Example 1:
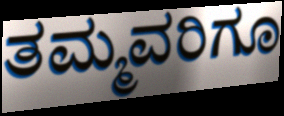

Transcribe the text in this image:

ತಮ್ಮವರಿಗೂ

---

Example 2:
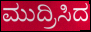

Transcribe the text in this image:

ಮುದ್ರಿಸಿದ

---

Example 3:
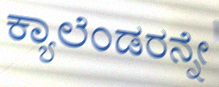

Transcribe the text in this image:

ಕ್ಯಾಲೆಂಡರನ್ನೇ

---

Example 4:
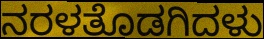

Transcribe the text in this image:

ನರಳತೊಡಗಿದಳು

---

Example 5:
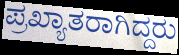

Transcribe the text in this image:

ಪ್ರಖ್ಯಾತರಾಗಿದ್ದರು